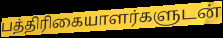
பத்திரிகையாளர்களுடன்